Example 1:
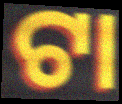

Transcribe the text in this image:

ଟା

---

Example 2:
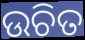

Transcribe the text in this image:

ଉଚିତ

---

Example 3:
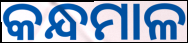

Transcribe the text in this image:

କନ୍ଧମାଳ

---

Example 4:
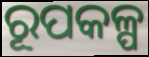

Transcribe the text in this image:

ରୂପକଳ୍ପ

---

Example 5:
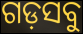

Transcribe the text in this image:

ଗଡ଼ସବୁ